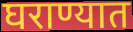
घराण्यात